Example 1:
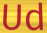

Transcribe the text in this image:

Ud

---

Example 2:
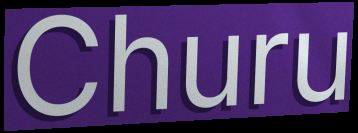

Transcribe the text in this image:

Churu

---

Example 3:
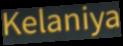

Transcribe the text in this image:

Kelaniya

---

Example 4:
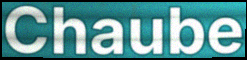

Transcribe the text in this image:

Chaube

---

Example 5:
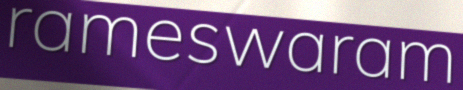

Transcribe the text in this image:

rameswaram